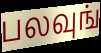
பலவுங்